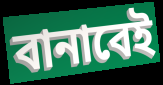
বানাবেই